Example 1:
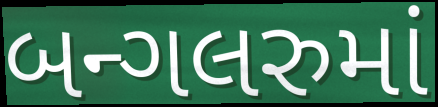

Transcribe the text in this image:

બન્ગલરુમાં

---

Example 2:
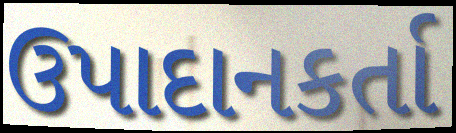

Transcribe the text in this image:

ઉપાદાનકર્તા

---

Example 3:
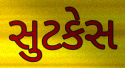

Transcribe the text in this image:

સુટકેસ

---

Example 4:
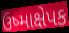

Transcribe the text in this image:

ઉષ્માક્ષેપક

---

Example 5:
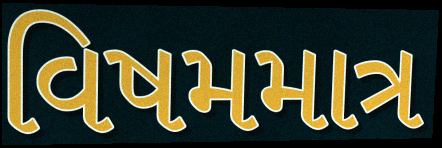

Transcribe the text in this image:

વિષમમાત્ર